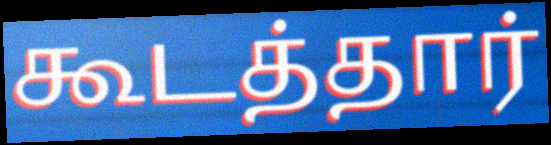
கூடத்தார்